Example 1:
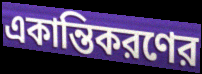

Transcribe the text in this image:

একান্তিকরণের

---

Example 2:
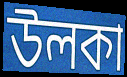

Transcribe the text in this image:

উলকা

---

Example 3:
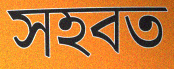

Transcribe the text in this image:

সহবত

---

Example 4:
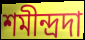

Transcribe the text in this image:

শমীন্দ্রদা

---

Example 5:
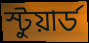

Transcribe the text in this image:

স্টুয়ার্ড